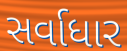
સર્વાધાર